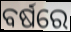
ବର୍ଷରେ